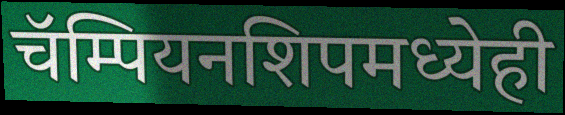
चॅम्पियनशिपमध्येही